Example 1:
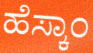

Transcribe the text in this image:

ಹೆಸ್ಕಾಂ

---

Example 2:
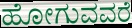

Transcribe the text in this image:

ಹೋಗುವವರೆ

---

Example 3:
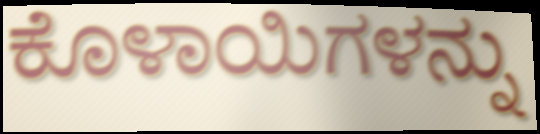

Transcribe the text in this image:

ಕೊಳಾಯಿಗಳನ್ನು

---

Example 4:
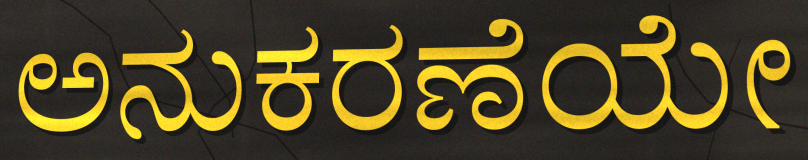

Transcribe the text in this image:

ಅನುಕರಣೆಯೇ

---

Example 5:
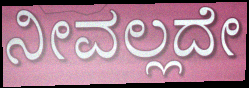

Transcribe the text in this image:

ನೀವಲ್ಲದೇ